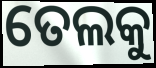
ତେଲକୁ